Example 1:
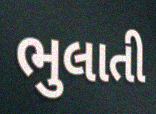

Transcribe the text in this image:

ભુલાતી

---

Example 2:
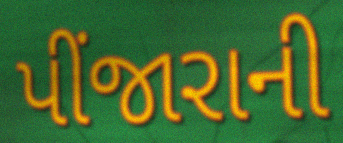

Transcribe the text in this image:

પીંજારાની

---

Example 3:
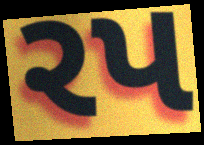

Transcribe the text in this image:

રપ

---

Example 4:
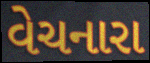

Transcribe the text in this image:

વેચનારા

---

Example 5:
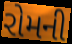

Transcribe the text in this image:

રોમની